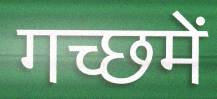
गच्छमें